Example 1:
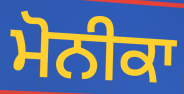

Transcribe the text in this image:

ਮੋਨੀਕਾ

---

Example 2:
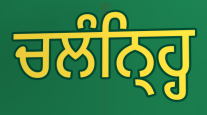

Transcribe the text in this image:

ਚਲੰਨ੍ਹ੍ਹਿ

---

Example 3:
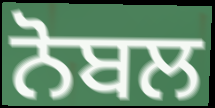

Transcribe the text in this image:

ਨੋਬਲ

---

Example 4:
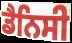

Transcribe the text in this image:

ਡੈਨਿਸੀ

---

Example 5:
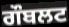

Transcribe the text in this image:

ਗੌਬਲਟ